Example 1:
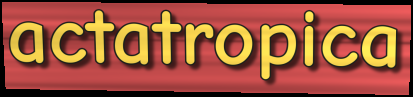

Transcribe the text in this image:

actatropica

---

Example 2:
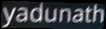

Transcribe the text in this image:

yadunath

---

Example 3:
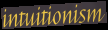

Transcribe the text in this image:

intuitionism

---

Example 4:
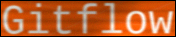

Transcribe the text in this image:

Gitflow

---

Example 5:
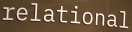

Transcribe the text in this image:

relational